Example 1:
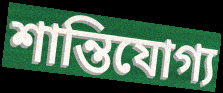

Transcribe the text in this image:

শান্তিযোগ্য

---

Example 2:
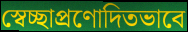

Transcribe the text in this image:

স্বেচ্ছাপ্রণোদিতভাবে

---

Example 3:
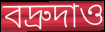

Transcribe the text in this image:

বদ্রুদাও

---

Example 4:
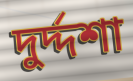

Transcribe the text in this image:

দুর্দ্দশা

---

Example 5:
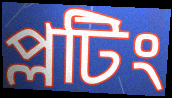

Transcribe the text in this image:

প্লটিং